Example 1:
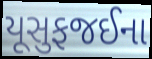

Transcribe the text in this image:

યૂસુફજઈના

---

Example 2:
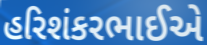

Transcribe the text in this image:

હરિશંકરભાઈએ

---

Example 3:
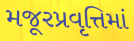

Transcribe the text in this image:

મજૂરપ્રવૃત્તિમાં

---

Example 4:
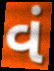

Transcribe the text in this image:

વં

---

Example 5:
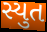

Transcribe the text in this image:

સ્યુત